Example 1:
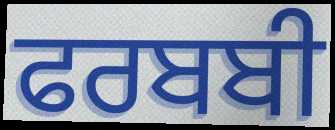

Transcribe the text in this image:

ਫਰਬਬੀ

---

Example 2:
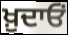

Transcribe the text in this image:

ਖ਼ੁਦਾਓਂ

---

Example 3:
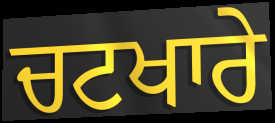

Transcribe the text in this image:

ਚਟਖਾਰੇ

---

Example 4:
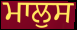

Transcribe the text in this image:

ਮਾਲੁਸ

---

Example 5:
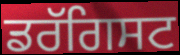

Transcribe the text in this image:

ਡਰੱਗਿਸਟ